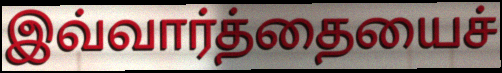
இவ்வார்த்தையைச்